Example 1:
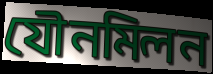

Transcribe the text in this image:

যৌনমিলন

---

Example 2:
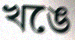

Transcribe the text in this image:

খঙে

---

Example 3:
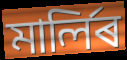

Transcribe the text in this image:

মাৰ্লিৰ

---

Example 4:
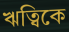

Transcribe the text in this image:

ঋত্বিকে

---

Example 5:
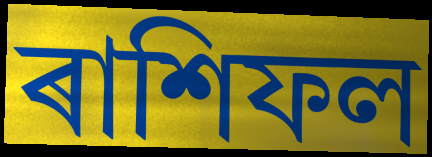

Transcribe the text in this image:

ৰাশিফল